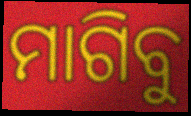
ମାଗିବୁ